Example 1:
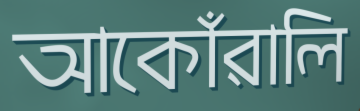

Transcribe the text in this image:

আকোঁৱালি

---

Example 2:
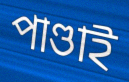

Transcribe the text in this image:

পাণ্ডাই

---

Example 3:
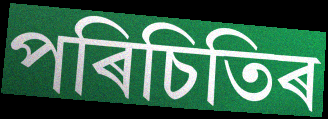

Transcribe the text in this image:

পৰিচিতিৰ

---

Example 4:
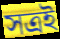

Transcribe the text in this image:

সত্ৰই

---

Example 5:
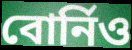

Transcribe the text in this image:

বোৰ্নিও